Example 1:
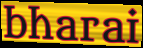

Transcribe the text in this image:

bharai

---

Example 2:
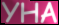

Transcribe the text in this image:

YHA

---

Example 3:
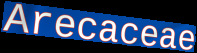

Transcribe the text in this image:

Arecaceae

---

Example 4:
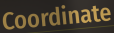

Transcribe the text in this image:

Coordinate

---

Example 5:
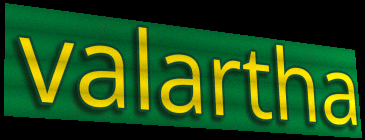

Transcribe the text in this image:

valartha